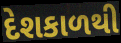
દેશકાળથી